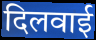
दिलवाई